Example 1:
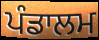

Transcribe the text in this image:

ਪੰਡਾਲਮ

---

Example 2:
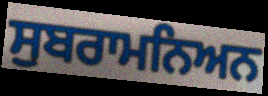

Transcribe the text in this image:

ਸੁਬਰਾਮਨਿਅਨ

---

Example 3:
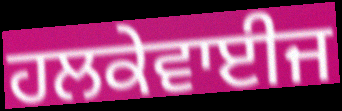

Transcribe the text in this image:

ਹਲਕੇਵਾਈਜ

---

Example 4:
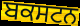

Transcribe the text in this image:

ਬਕਸਟਨ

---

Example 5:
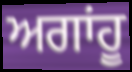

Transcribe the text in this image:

ਅਗਾਂਹੂ